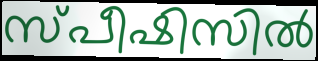
സ്പീഷിസിൽ